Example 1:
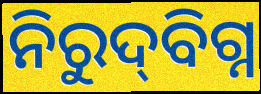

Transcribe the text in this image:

ନିରୁଦ୍‌ବିଗ୍ନ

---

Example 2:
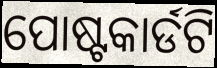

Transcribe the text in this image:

ପୋଷ୍ଟକାର୍ଡଟି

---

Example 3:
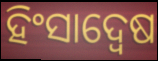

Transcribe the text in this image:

ହିଂସାଦ୍ୱେଷ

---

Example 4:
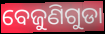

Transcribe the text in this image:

ବେଜୁଣିଗୁଡା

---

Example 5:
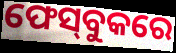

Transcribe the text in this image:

ଫେସ୍‌ବୁକରେ